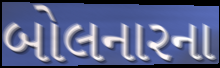
બોલનારના